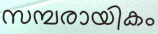
സമ്പരായികം